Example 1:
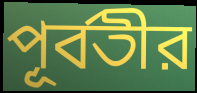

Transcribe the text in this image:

পূর্বতীর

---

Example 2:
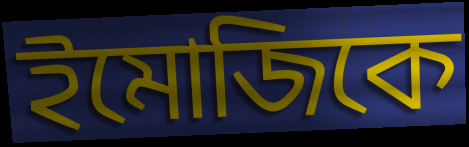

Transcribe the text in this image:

ইমোজিকে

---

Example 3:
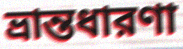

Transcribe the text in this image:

ভ্রান্তধারণা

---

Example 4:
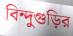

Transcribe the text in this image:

বিন্দুগুড়ির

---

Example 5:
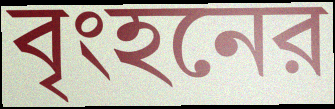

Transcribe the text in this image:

বৃংহনের